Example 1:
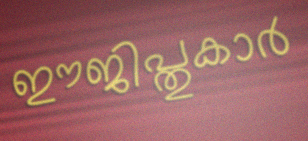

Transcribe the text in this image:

ഈജിപ്തുകാർ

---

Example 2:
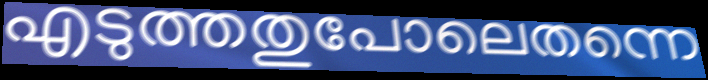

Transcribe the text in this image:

എടുത്തതുപോലെതന്നെ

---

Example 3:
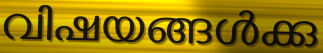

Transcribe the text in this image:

വിഷയങ്ങൾക്കു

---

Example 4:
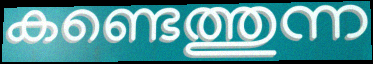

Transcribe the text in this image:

കണ്ടെത്തുന്ന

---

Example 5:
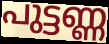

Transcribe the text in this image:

പുട്ടണ്ണ